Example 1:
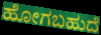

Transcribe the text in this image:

ಹೋಗಬಹುದೆ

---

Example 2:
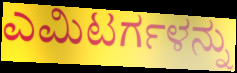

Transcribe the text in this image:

ಎಮಿಟರ್ಗಳನ್ನು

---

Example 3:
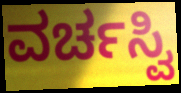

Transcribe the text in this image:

ವರ್ಚಸ್ವಿ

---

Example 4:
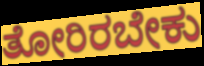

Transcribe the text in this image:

ತೋರಿರಬೇಕು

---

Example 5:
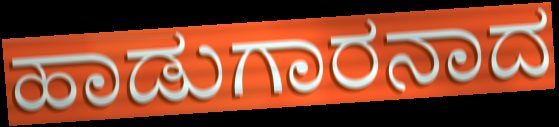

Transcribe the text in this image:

ಹಾಡುಗಾರನಾದ